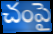
చంపై